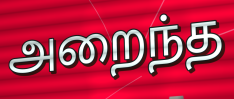
அறைந்த